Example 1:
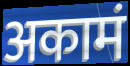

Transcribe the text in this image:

अकामं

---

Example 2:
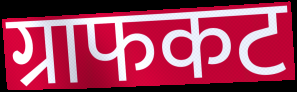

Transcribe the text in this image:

ग्राफकट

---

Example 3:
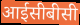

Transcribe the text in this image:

आईसीबीसी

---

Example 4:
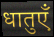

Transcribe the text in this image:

धातुएँ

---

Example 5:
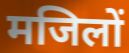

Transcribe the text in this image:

मजिलों